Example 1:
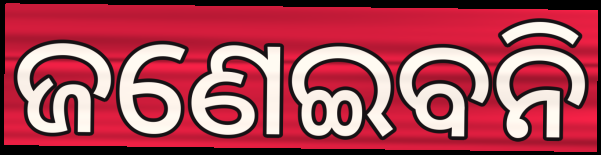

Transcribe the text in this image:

ଜଣେଇବନି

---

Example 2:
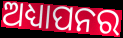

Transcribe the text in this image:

ଅଧ୍ୟାପନର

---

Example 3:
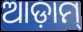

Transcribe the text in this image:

ଆଡ଼ାମ୍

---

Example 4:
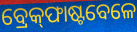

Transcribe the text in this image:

ବ୍ରେକ୍‌ଫାଷ୍ଟବେଳେ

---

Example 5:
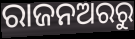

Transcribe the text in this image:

ରାଜନଅରରୁ